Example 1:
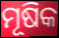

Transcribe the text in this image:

ମୂଷିକ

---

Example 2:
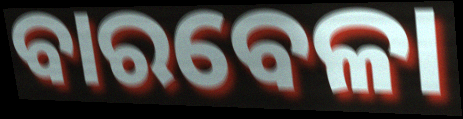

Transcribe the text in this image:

ବାରବେଳା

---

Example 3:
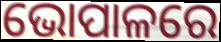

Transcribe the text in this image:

ଭୋପାଳରେ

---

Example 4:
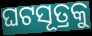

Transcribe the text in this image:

ଘଟସୂତ୍ରକୁ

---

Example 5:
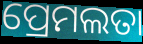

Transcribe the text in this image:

ପ୍ରେମଲତା